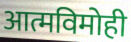
आत्मविमोही